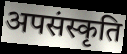
अपसंस्कृति